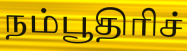
நம்பூதிரிச்